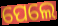
ପେଲେ